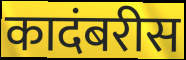
कादंबरीस